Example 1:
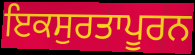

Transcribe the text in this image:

ਇਕਸੁਰਤਾਪੂਰਨ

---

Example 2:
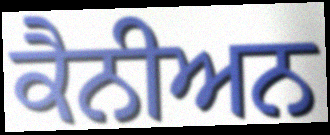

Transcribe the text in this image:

ਕੈਨੀਅਨ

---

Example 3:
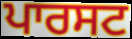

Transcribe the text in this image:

ਪਾਰਸਟ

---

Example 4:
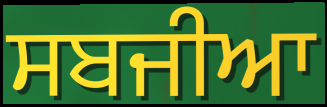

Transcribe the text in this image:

ਸਬਜੀਆ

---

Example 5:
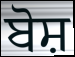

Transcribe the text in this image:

ਬੋਸ਼